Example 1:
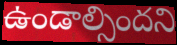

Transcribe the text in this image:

ఉండాల్సిందని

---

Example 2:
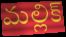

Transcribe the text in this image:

మల్లిక్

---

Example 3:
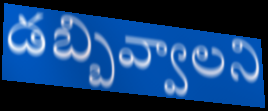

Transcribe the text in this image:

డబ్బివ్వాలని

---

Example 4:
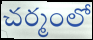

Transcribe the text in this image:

చర్మంలో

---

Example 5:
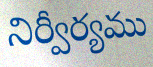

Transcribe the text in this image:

నిర్వీర్యము